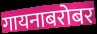
गायनाबरोबर